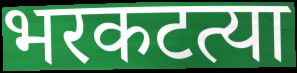
भरकटत्या